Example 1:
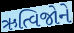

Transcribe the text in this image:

ઋત્વિજોને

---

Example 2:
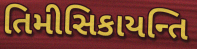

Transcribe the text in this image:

તિમીસિકાયન્તિ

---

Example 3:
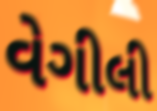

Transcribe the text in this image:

વેગીલી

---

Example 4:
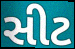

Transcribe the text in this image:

સીટ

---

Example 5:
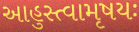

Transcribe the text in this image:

આહુસ્ત્વામૃષયઃ